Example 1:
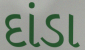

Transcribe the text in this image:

દાંડા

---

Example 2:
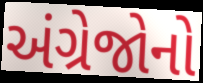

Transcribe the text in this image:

અંગ્રેજોનો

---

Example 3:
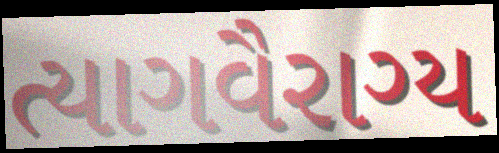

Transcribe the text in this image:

ત્યાગવૈરાગ્ય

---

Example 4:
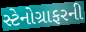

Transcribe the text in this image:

સ્ટેનોગ્રાફરની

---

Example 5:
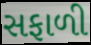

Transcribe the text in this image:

સફાળી